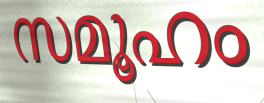
സമൂഹം